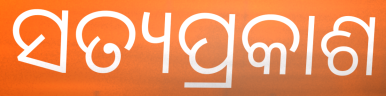
ସତ୍ୟପ୍ରକାଶ